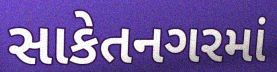
સાકેતનગરમાં